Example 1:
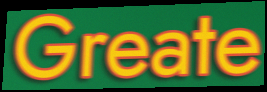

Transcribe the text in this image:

Greate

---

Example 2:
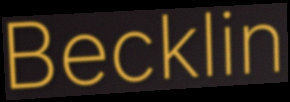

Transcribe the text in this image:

Becklin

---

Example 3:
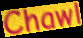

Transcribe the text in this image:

Chawl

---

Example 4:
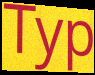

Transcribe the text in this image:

Typ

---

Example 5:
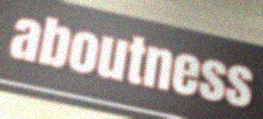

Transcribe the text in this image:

aboutness